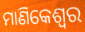
ମାଣିକେଶ୍ଵର